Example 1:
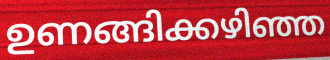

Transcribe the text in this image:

ഉണങ്ങിക്കഴിഞ്ഞ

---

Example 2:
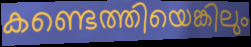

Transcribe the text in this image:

കണ്ടെത്തിയെങ്കിലും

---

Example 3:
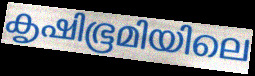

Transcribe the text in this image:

കൃഷിഭൂമിയിലെ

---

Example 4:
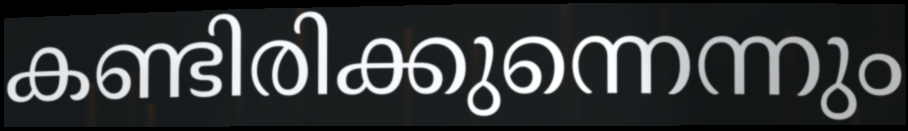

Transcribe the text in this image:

കണ്ടിരിക്കുന്നെന്നും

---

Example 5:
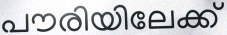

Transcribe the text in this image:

പൗരിയിലേക്ക്